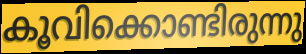
കൂവിക്കൊണ്ടിരുന്നു